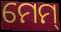
ମେମ୍